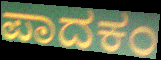
ಪಾದಕಂ